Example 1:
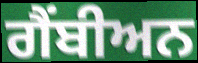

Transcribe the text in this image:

ਗੈਂਬੀਅਨ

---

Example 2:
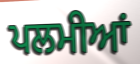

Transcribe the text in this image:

ਪਲਮੀਆਂ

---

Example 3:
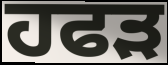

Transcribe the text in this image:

ਹਫੜ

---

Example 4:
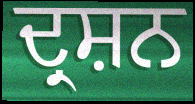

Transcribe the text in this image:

ਦ੍ਰਸ਼ਨ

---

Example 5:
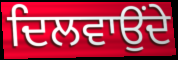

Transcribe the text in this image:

ਦਿਲਵਾਉਂਦੇ